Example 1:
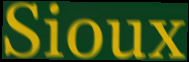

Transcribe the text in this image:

Sioux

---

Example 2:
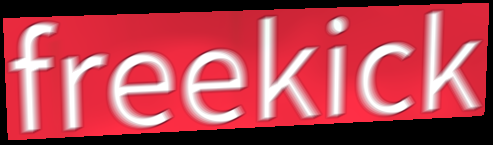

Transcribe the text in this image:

freekick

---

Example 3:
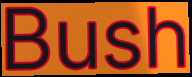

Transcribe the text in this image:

Bush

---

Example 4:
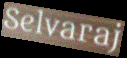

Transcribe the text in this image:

Selvaraj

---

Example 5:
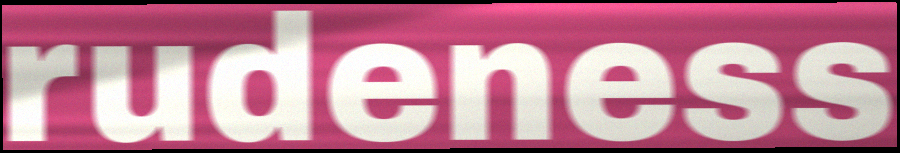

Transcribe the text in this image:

rudeness